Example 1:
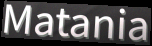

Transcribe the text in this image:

Matania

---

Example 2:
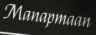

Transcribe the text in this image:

Manapmaan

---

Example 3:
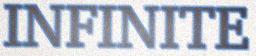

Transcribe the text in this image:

INFINITE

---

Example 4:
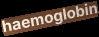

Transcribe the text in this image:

haemoglobin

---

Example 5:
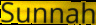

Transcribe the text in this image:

Sunnah